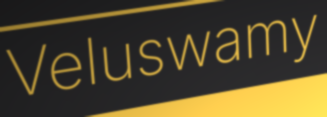
Veluswamy